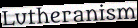
Lutheranism